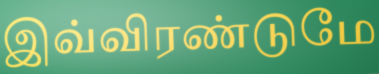
இவ்விரண்டுமே